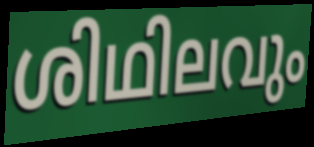
ശിഥിലവും